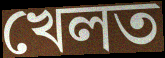
খেলত